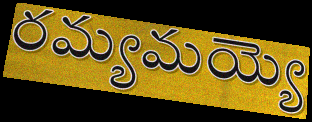
రమ్యమయ్యె